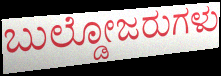
ಬುಲ್ಡೋಜರುಗಳು